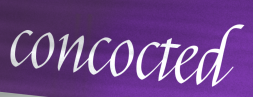
concocted